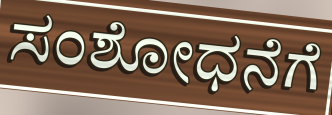
ಸಂಶೋಧನೆಗೆ